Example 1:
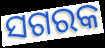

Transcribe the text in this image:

ସଗରକ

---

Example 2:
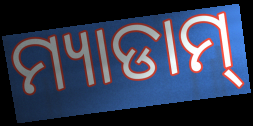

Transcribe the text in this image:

ମ୍ୟାଡାମ୍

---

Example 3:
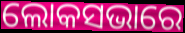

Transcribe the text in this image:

ଲୋକସଭାରେ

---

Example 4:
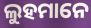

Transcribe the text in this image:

ଲୁହମାନେ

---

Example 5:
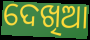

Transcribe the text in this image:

ଦେଖିଆ